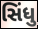
સિંધુ